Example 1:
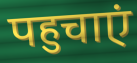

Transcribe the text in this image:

पहुचाएं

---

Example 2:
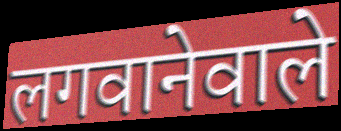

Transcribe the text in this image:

लगवानेवाले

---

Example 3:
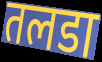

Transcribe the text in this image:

तलडा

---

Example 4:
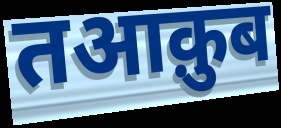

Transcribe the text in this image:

तआक़ुब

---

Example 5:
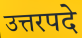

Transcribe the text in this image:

उत्तरपदे